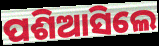
ପଶିଆସିଲେ